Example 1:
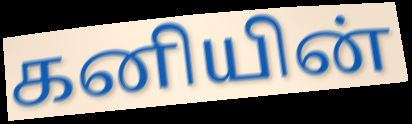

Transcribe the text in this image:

கனியின்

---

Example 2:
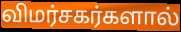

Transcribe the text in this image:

விமர்சகர்களால்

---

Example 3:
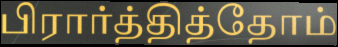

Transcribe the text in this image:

பிரார்த்தித்தோம்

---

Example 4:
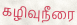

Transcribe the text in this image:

கழிவுநீரை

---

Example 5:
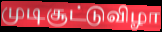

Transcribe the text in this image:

முடிசூட்டுவிழா